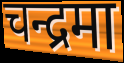
चन्द्रमा